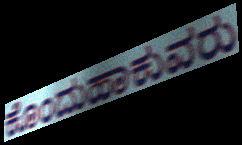
ಕೊಂದುಹಾಕುವರು